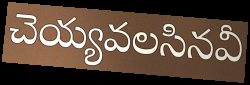
చెయ్యవలసినవీ